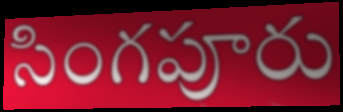
సింగపూరు